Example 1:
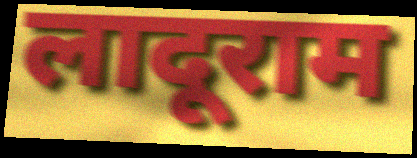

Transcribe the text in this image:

लादूराम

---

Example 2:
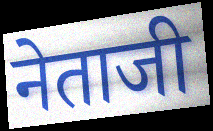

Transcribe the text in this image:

नेताजी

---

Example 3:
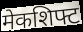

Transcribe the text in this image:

मेकशिफ्ट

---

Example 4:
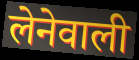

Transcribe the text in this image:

लेनेवाली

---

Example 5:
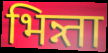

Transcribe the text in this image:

भिन्न्ता